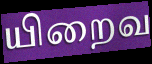
யிறைவ